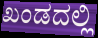
ಖಂಡದಲ್ಲಿ